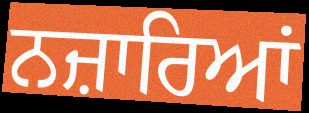
ਨਜ਼ਾਰਿਆਂ